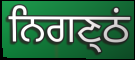
ਨਿਗਣ੍ਠਂ